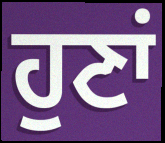
ਹੁਣਾਂ